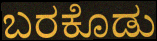
ಬರಕೊಡು